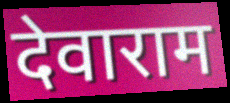
देवाराम